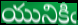
యునికిఁ